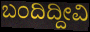
ಬಂದಿದ್ದೀವಿ